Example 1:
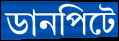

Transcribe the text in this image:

ডানপিটে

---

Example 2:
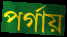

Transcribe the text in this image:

পর্গায়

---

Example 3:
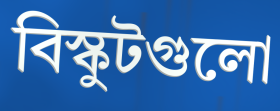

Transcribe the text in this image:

বিস্কুটগুলো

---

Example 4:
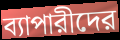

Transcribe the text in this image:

ব্যাপারীদের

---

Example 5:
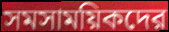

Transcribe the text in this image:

সমসাময়িকদের